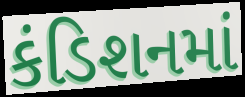
કંડિશનમાં